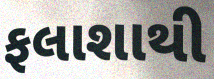
ફલાશાથી